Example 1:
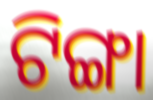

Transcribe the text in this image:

ଟିଙ୍ଗା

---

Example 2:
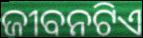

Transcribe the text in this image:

ଜୀବନଟିଏ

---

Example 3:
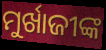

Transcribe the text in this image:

ମୁର୍ଖାଜୀଙ୍କ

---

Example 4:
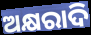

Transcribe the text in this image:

ଅକ୍ଷରାଦି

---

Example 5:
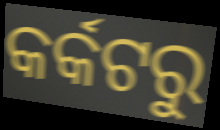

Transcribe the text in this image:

କର୍କଟରୁ